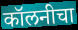
कॉलनीचा